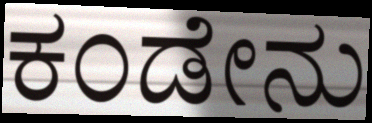
ಕಂಡೇನು